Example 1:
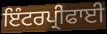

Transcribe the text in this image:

ਇੰਟਰਪ੍ਰੀਫਾਈ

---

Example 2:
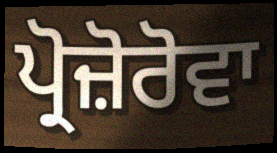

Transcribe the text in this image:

ਪ੍ਰੋਜ਼ੋਰੋਵਾ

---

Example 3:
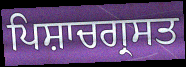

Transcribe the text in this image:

ਪਿਸ਼ਾਚਗ੍ਰਸਤ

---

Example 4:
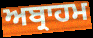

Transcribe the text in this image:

ਅਬ੍ਰਾਹਮ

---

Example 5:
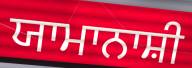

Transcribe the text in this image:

ਯਾਮਾਨਾਸ਼ੀ